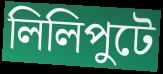
লিলিপুটে